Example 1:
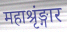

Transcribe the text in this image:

महाश्रृंङ्गार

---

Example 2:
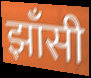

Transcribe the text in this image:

झाँसी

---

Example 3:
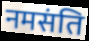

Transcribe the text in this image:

नमसंति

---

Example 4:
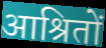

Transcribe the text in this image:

आश्रितों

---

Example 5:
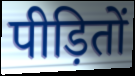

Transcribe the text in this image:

पीड़ितों